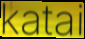
katai